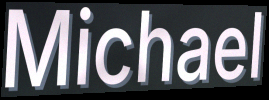
Michael